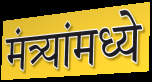
मंत्र्यांमध्ये